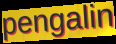
pengalin